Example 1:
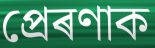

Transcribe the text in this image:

প্ৰেৰণাক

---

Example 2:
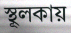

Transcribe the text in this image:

স্থূলকায়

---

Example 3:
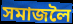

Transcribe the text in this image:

সমাজলৈ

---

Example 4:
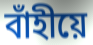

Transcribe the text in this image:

বাঁহীয়ে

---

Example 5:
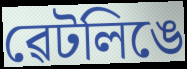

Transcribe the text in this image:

ৱেটলিঙে